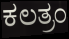
ಕಲತ್ರಂ